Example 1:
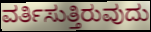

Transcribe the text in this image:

ವರ್ತಿಸುತ್ತಿರುವುದು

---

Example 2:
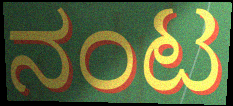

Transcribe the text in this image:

ನಂಟ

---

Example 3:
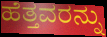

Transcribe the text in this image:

ಹೆತ್ತವರನ್ನು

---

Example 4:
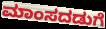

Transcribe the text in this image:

ಮಾಂಸದಡುಗೆ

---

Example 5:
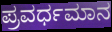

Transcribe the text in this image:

ಪ್ರವರ್ಧಮಾನ